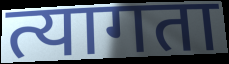
त्यागता